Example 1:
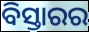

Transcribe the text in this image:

ବିସ୍ତାରର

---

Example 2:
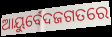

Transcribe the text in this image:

ଆୟୁର୍ବେଦଜଗତରେ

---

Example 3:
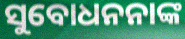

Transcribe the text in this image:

ସୁବୋଧନନାଙ୍କ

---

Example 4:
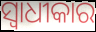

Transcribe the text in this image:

ସ୍ୱାଧୀକାର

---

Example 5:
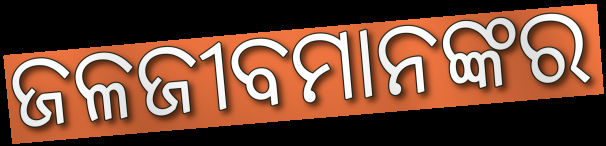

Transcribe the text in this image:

ଜଳଜୀବମାନଙ୍କର